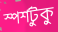
স্পর্শটুকু